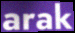
arak